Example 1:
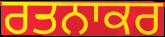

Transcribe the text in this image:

ਰਤਨਾਕਰ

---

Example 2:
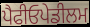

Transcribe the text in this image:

ਪੈਫੀਓਪੇਡੀਲਮ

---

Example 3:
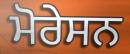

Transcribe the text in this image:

ਮੋਰੇਸਨ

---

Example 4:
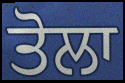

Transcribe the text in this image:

ਤੋਲਾ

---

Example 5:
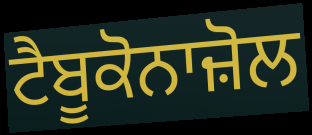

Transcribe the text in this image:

ਟੈਬੂਕੋਨਾਜ਼ੋਲ